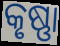
କୃଷ୍ଣା